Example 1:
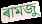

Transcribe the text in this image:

ৰামজু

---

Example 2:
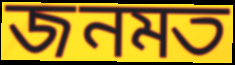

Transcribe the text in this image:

জনমত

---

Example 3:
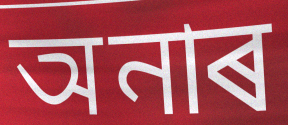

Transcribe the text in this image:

অনাৰ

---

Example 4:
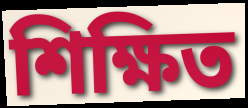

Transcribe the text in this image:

শিক্ষিত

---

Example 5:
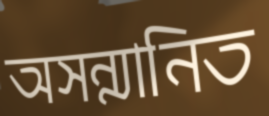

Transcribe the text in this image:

অসন্মানিত